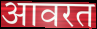
आवरत